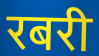
रबरी